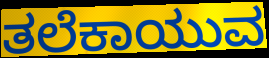
ತಲೆಕಾಯುವ